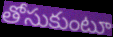
తోసుకుంటూ